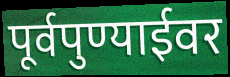
पूर्वपुण्याईवर